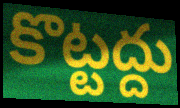
కొట్టద్దు